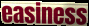
easiness